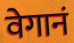
वेगानं